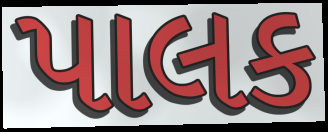
પાલક